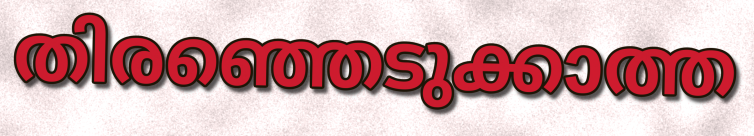
തിരഞ്ഞെടുക്കാത്ത